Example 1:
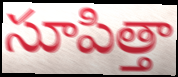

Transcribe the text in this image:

సూపిత్తా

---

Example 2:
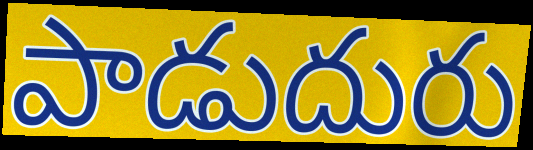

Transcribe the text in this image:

పాడుదురు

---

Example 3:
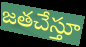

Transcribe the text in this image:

జతచేస్తూ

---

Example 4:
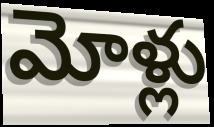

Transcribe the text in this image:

మోళ్లు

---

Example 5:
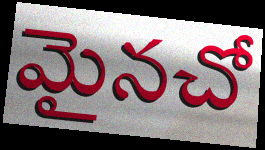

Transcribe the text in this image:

మైనచో